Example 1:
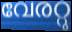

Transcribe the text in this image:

വേരറ്റു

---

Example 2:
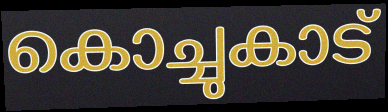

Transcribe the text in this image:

കൊച്ചുകാട്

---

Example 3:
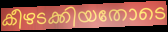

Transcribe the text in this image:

കീഴടക്കിയതോടെ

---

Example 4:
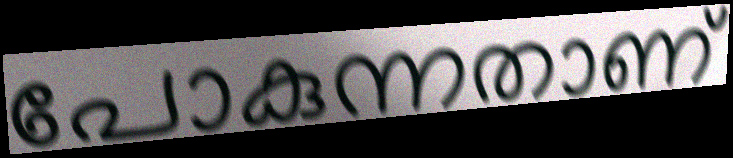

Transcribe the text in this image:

പോകുന്നതാണ്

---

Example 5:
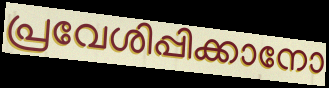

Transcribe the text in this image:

പ്രവേശിപ്പിക്കാനോ